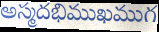
అస్మదభిముఖముగ